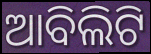
ଆବିଲିଟି